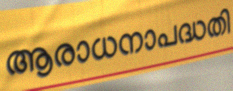
ആരാധനാപദ്ധതി